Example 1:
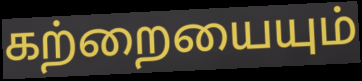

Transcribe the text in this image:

கற்றையையும்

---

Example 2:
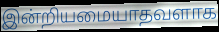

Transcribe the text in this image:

இன்றியமையாதவளாக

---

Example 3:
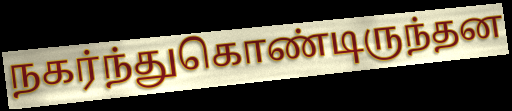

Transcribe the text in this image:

நகர்ந்துகொண்டிருந்தன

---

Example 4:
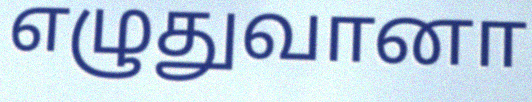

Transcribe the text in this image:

எழுதுவானா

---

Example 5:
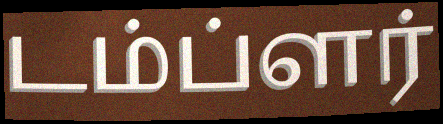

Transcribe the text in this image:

டம்ப்ளர்